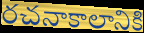
రచనాకాలానికి